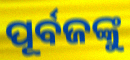
ପୂର୍ବଜଙ୍କୁ